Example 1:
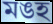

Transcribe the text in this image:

মঙহ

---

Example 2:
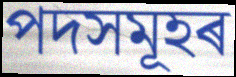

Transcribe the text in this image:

পদসমূহৰ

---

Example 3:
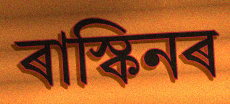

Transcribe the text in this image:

ৰাস্কিনৰ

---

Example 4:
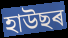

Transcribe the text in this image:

হাউছৰ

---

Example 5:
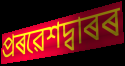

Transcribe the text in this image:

প্ৰৰৱেশদ্বাৰৰ